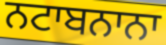
ਨਟਾਬਨਾਨਾ